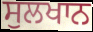
ਸੁਲਖਾਨ